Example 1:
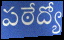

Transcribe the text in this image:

పఠేద్యో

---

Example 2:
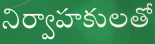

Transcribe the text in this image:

నిర్వాహకులతో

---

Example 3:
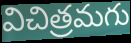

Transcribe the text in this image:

విచిత్రమగు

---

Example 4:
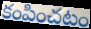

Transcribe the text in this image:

కంపించటం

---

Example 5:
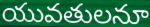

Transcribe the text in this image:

యువతులనూ